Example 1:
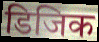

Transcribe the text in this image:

डिजिक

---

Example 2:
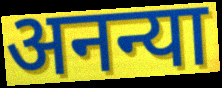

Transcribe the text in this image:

अनन्या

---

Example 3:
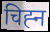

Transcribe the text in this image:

चिह्‍न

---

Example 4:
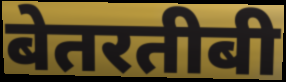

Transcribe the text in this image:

बेतरतीबी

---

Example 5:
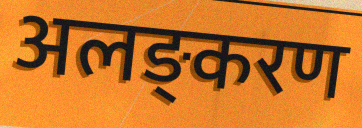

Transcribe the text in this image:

अलङ्करण